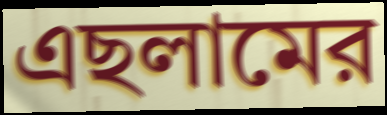
এছলামের